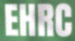
EHRC